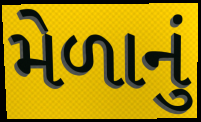
મેળાનું